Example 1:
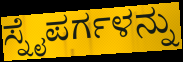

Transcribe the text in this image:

ಸ್ನೈಪರ್ಗಳನ್ನು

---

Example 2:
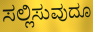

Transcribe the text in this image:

ಸಲ್ಲಿಸುವುದೂ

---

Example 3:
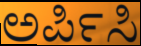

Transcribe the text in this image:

ಅರ್ಪಿಸಿ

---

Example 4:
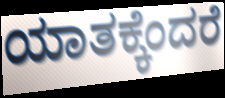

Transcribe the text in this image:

ಯಾತಕ್ಕೆಂದರೆ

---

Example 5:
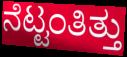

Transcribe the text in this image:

ನೆಟ್ಟಂತಿತ್ತು